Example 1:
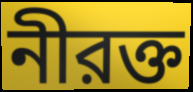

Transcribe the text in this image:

নীরক্ত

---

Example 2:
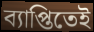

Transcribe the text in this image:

ব্যাপ্তিতেই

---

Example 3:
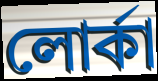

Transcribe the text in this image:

লোর্কা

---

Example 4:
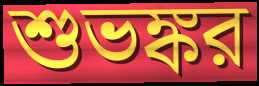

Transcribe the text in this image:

শুভঙ্কর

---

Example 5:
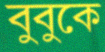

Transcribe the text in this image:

বুবুকে